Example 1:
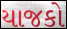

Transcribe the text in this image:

યાજકો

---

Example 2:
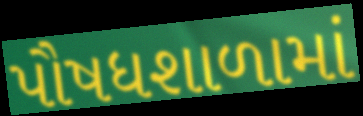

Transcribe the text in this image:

પૌષધશાળામાં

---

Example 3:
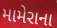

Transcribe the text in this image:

મામેરાના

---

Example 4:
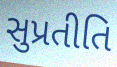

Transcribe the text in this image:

સુપ્રતીતિ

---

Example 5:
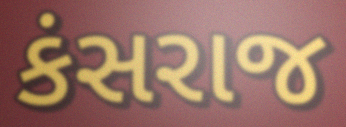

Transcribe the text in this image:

કંસરાજ